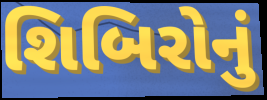
શિબિરોનું